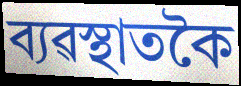
ব্যৱস্থাতকৈ